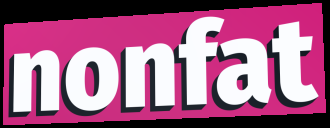
nonfat